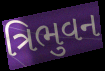
ત્રિભુવન